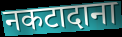
नकटादाना